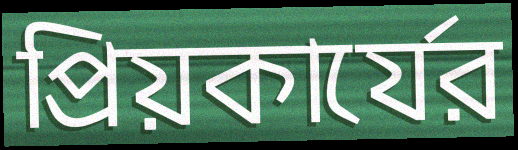
প্রিয়কার্যের